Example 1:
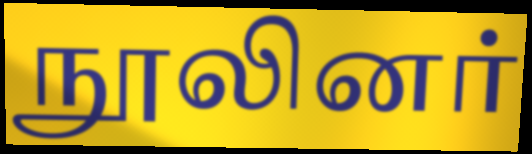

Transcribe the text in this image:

நூலினர்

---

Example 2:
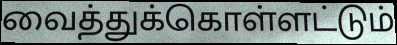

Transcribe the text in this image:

வைத்துக்கொள்ளட்டும்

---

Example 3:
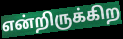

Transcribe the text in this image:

என்றிருக்கிற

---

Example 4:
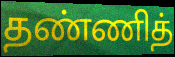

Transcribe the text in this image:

தண்ணித்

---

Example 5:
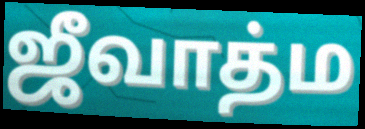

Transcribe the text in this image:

ஜீவாத்ம